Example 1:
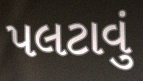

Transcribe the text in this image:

પલટાવું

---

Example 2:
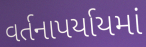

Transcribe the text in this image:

વર્તનાપર્યાયમાં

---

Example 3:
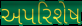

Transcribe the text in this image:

અપરિશેષ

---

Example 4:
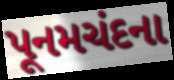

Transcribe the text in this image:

પૂનમચંદના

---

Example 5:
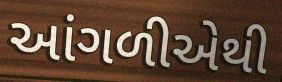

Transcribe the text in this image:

આંગળીએથી